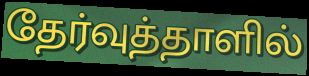
தேர்வுத்தாளில்